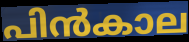
പിൻകാല